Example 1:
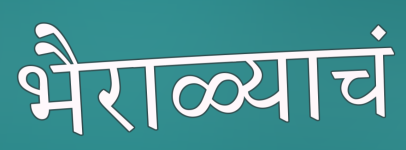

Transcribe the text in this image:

भैराळ्याचं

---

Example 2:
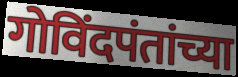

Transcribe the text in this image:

गोविंदपंतांच्या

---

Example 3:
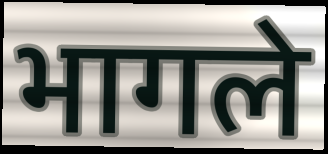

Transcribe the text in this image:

भागले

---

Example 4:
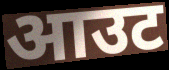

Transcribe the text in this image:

आउट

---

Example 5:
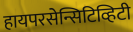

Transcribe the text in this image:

हायपरसेन्सिटिव्हिटी